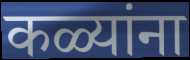
कळ्यांना